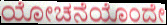
ಯೋಚನೆಯೊಂದೇ